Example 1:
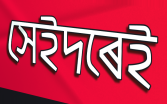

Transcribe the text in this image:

সেইদৰেই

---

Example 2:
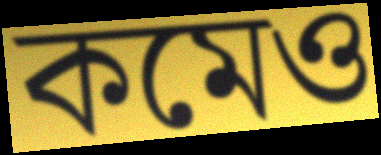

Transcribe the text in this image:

কমেও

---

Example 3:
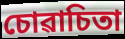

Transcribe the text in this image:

চোৱাচিতা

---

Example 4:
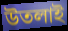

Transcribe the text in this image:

উতলাই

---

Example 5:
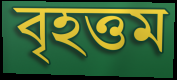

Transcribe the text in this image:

বৃহত্তম